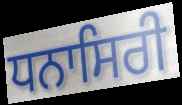
ਧਨਾਸਿਰੀ